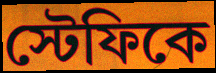
স্টেফিকে